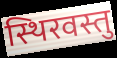
स्थिरवस्तु